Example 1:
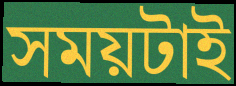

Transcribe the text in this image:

সময়টাই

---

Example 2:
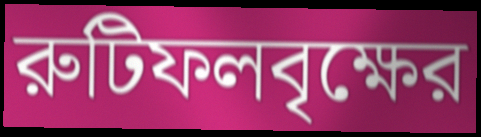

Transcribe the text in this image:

রুটিফলবৃক্ষের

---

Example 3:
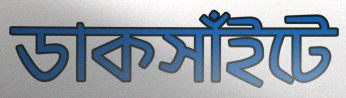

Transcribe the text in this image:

ডাকসাঁইটে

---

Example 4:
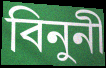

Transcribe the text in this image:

বিনুনী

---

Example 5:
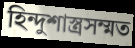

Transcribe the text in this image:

হিন্দুশাস্ত্রসম্মত